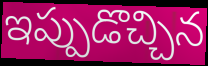
ఇప్పుడొచ్చిన